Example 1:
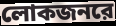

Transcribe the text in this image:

লোকজনরে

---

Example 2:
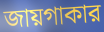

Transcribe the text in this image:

জায়গাকার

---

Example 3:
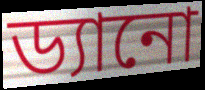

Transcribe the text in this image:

ড্যানো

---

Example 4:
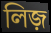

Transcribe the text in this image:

লিজ়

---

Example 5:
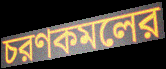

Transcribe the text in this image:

চরণকমলের